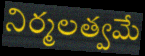
నిర్మలత్వమే